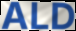
ALD